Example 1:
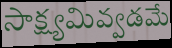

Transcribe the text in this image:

సాక్ష్యమివ్వడమే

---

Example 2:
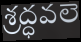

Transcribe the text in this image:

శ్రద్ధవలె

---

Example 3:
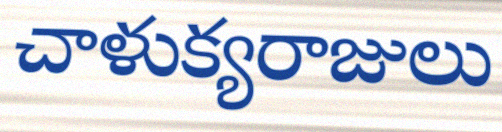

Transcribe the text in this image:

చాళుక్యరాజులు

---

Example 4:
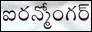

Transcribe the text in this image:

ఐరన్మోంగర్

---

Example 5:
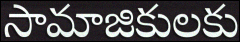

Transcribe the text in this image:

సామాజికులకు